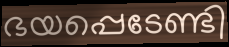
ഭയപ്പെടേണ്ടി